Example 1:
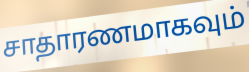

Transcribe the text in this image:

சாதாரணமாகவும்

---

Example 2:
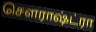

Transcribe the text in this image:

சௌராஷ்ட்ரா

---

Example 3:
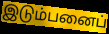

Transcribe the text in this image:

இடும்பனைப்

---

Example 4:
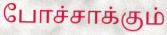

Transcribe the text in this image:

போச்சாக்கும்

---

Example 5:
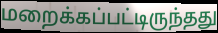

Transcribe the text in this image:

மறைக்கப்பட்டிருந்தது